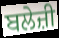
ਬਲੇਜ਼ੀ